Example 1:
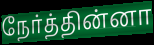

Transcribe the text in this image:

நேர்த்தின்னா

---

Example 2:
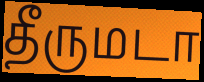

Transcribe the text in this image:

தீருமடா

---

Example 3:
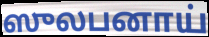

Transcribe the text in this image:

ஸுலபனாய்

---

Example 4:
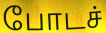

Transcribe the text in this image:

போடச்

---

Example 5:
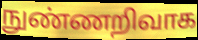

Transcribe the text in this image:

நுண்ணறிவாக